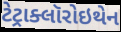
ટેટ્રાક્લૉરોઇથેન